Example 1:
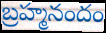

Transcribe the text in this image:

బ్రహ్మనందం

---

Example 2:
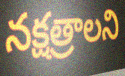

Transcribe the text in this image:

నక్షత్రాలని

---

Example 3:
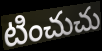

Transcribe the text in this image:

టించుచు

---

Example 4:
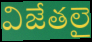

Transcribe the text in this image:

విజేతలై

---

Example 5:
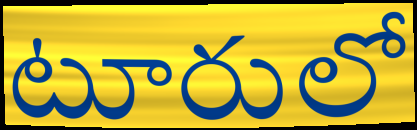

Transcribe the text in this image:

టూరులో